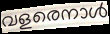
വളരെനാൾ